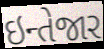
ઇન્તેજાર